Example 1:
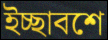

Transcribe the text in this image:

ইচ্ছাবশে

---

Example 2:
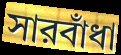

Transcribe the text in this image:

সারবাঁধা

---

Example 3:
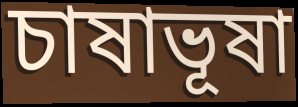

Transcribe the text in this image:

চাষাভূষা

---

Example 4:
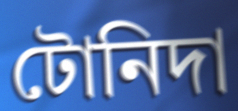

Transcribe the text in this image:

টোনিদা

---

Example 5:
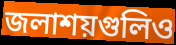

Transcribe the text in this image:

জলাশয়গুলিও